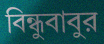
বিন্ধুবাবুর